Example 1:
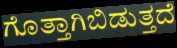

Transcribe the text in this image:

ಗೊತ್ತಾಗಿಬಿಡುತ್ತದೆ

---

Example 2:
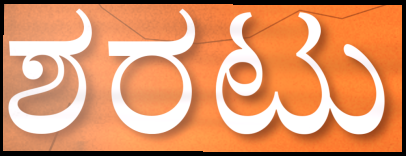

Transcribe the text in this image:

ಶರಟು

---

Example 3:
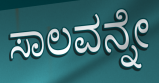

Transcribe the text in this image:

ಸಾಲವನ್ನೇ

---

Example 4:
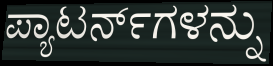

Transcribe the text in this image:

ಪ್ಯಾಟರ್ನ್‌ಗಳನ್ನು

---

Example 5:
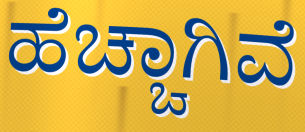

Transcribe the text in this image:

ಹೆಚ್ಚಾಗಿವೆ